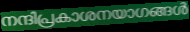
നന്ദിപ്രകാശനയാഗങ്ങൾ